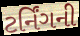
ટર્નિંગની